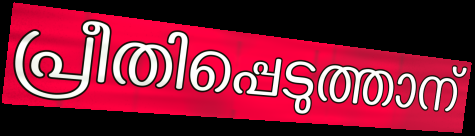
പ്രീതിപ്പെടുത്താന്